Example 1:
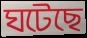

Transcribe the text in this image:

ঘটেছে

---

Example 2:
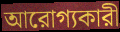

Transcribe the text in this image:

আরোগ্যকারী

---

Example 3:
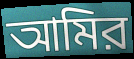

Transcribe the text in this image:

আমির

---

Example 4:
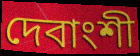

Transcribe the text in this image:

দেবাংশী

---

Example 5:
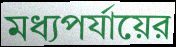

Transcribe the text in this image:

মধ্যপর্যায়ের